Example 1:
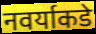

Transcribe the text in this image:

नवर्याकडे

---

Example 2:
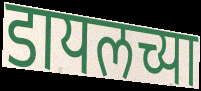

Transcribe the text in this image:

डायलच्या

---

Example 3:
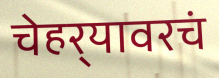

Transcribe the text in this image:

चेहर्‍यावरचं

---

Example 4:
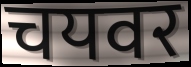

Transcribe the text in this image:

चयवर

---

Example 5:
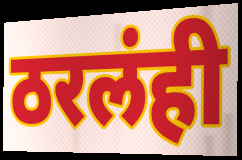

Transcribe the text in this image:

ठरलंही